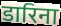
डारिना